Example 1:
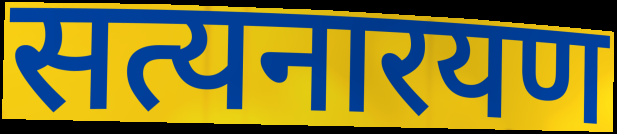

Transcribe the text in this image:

सत्यनारयण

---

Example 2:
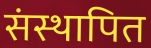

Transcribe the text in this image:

संस्थापित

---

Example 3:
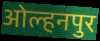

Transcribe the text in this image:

ओल्हनपुर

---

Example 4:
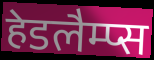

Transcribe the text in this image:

हेडलैम्प्स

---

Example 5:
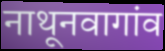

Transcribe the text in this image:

नाथूनवागांव